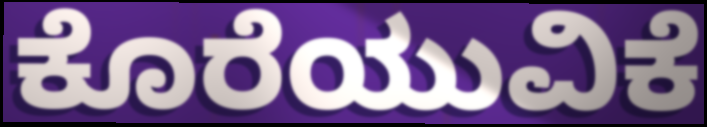
ಕೊರೆಯುವಿಕೆ